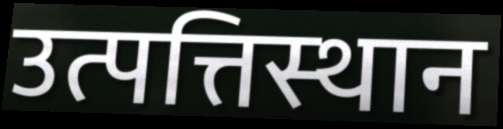
उत्पत्तिस्थान